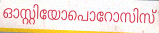
ഓസ്റ്റിയോപൊറോസിസ്